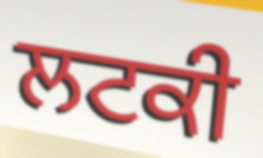
ਲਟਕੀ